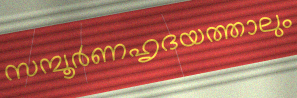
സമ്പൂർണഹൃദയത്താലും